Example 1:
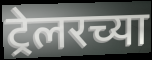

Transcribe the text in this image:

ट्रेलरच्या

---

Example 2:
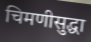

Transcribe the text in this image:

चिमणीसुद्धा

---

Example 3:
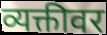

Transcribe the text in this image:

व्यक्तीवर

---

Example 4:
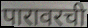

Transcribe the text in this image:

पारावरची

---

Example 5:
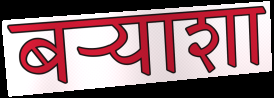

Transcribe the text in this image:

बऱ्याशा